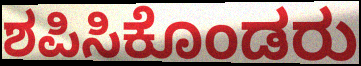
ಶಪಿಸಿಕೊಂಡರು